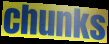
chunks